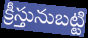
క్రీస్తునుబట్టి